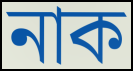
নাক